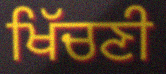
ਖਿੱਚਣੀ